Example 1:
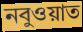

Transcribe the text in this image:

নবুওয়াত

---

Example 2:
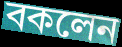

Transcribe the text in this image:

বকলেন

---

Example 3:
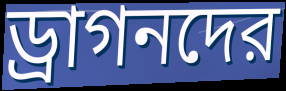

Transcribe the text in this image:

ড্রাগনদের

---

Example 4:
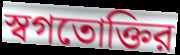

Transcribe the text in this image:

স্বগতোক্তির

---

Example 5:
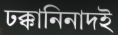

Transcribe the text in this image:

ঢক্কানিনাদই